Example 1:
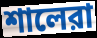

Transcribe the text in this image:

শালেরা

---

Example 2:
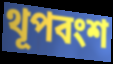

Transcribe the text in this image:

থূপবংশ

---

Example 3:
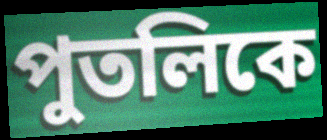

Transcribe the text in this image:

পুতলিকে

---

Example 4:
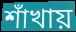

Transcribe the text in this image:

শাঁখায়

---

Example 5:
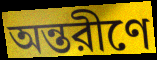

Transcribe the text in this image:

অন্তরীণে